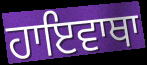
ਹਾਇਵਾਥਾ